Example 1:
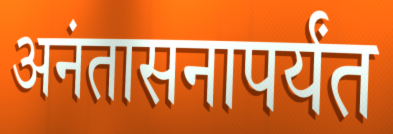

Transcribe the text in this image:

अनंतासनापर्यंत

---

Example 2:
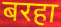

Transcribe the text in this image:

बरहा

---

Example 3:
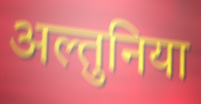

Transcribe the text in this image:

अल्तुनिया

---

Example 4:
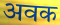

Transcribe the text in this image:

अवक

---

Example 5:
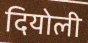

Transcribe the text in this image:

दियोली